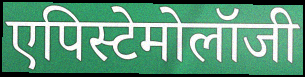
एपिस्टेमोलॉजी